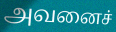
அவனைச்